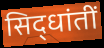
सिद्धांतीं